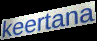
keertana